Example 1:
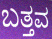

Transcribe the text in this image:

ಬತ್ತವ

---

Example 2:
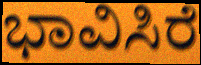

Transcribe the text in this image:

ಭಾವಿಸಿರೆ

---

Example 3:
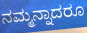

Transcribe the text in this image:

ನಮ್ಮನ್ನಾದರೂ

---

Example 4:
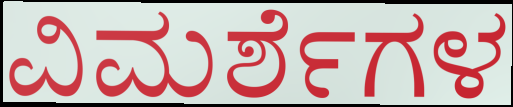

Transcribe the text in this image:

ವಿಮರ್ಶೆಗಳ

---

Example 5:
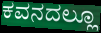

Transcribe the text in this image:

ಕವನದಲ್ಲೂ